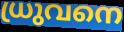
ധ്രുവനെ